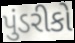
પુંડરીકો